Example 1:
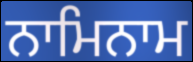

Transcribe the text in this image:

ਨਾਮਿਨਾਮ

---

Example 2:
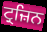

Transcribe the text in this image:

ਟ੍ਰਜ਼ਿਨ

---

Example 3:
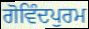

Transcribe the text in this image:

ਗੋਵਿੰਦਪੁਰਮ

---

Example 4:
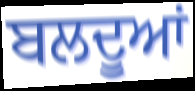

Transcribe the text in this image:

ਬਲਦੂਆਂ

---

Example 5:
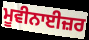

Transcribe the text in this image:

ਮੂਵੀਨਾਈਜ਼ਰ